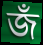
জঁ